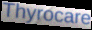
Thyrocare